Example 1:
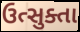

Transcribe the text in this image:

ઉત્સુક્તા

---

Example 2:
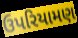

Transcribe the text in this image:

ઉપરિયામણ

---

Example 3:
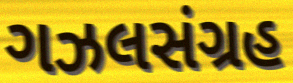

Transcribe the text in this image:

ગઝલસંગ્રહ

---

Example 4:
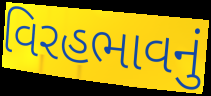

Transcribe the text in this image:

વિરહભાવનું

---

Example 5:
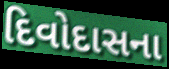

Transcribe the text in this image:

દિવોદાસના